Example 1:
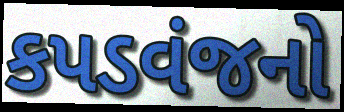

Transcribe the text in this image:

કપડવંજનો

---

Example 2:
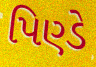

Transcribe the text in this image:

પિણ્ડે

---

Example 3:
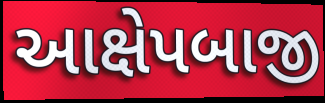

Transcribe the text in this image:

આક્ષેપબાજી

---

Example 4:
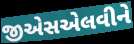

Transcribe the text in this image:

જીએસએલવીને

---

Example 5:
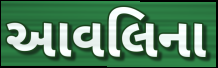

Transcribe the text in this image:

આવલિના